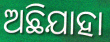
ଅଛିଯାହା